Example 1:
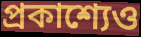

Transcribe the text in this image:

প্রকাশ্যেও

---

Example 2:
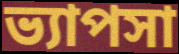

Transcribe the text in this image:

ভ্যাপসা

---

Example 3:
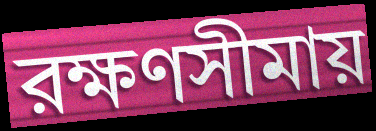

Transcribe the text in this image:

রক্ষণসীমায়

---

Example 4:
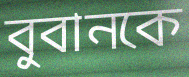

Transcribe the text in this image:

বুবানকে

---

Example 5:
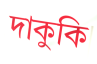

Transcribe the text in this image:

দাকুকি